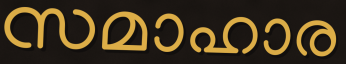
സമാഹാര